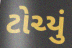
ટોચ્યું